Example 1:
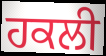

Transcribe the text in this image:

ਹਕਲੀ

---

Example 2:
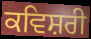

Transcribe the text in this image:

ਕਵਿਸ਼ਰੀ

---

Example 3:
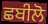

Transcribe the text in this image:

ਛਬੀਲੋ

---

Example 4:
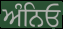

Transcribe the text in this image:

ਅੰਨਿਓ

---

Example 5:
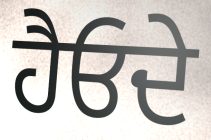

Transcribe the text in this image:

ਹੈਓਦੇ